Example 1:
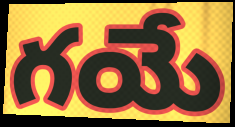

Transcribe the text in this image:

గయే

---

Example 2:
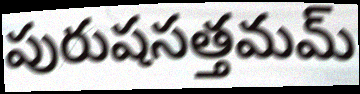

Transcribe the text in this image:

పురుషసత్తమమ్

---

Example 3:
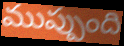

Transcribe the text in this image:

ముప్పుంది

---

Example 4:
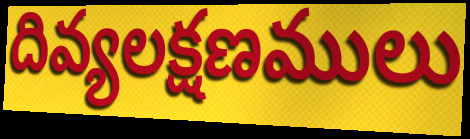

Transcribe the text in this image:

దివ్యలక్షణములు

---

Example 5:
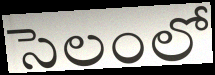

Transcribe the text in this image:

సెలంలో